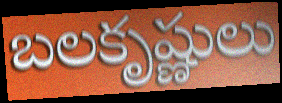
బలకృష్ణులు